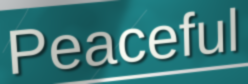
Peaceful